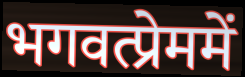
भगवत्प्रेममें